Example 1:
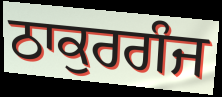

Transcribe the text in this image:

ਠਾਕੁਰਗੰਜ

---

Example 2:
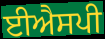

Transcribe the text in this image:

ਈਐਸਪੀ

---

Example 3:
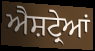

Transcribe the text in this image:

ਐਸ਼ਟ੍ਰੇਆਂ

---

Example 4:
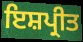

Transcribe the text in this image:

ਇਸ਼ਪ੍ਰੀਤ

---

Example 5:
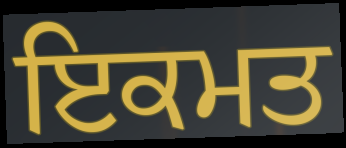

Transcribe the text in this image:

ਇਕਮਤ